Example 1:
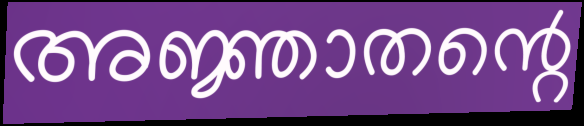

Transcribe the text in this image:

അജ്ഞാതന്റെ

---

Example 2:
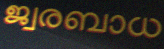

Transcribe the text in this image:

ജ്വരബാധ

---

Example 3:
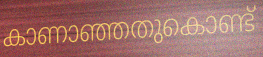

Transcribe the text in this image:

കാണാഞ്ഞതുകൊണ്ട്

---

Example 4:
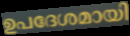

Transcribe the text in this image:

ഉപദേശമായി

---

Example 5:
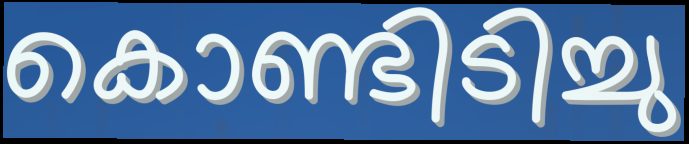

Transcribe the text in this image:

കൊണ്ടിടിച്ചു